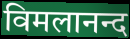
विमलानन्द